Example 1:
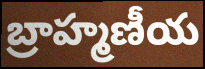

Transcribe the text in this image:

బ్రాహ్మణీయ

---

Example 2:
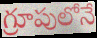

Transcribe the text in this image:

గ్రూపులోనే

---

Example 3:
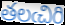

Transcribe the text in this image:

తలఁచిరి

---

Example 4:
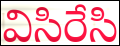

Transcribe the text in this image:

విసిరేసి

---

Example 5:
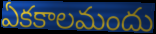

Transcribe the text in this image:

ఏకకాలమందు